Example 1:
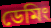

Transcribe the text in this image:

ডেমিং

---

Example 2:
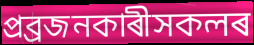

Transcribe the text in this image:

প্ৰব্ৰজনকাৰীসকলৰ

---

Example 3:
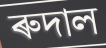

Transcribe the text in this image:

ৰুদাল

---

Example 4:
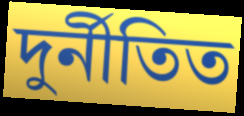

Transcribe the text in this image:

দুৰ্নীতিত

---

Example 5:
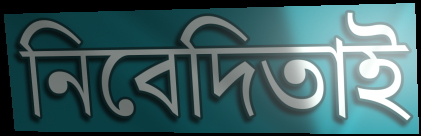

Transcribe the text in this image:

নিবেদিতাই